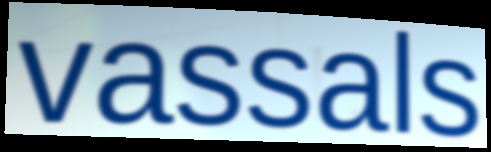
vassals